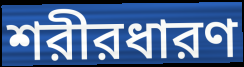
শরীরধারণ